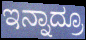
ಇನ್ನಾದ್ರೂ